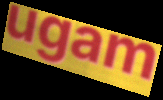
ugam